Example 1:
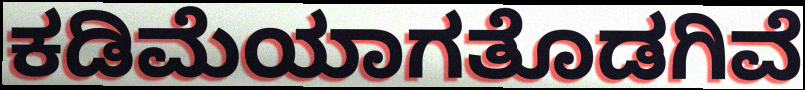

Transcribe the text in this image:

ಕಡಿಮೆಯಾಗತೊಡಗಿವೆ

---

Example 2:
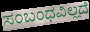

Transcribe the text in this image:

ಸಂಬಂಧವಿಲ್ಲದೆ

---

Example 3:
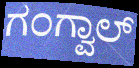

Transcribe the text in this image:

ಗಂಗ್ವಾಲ್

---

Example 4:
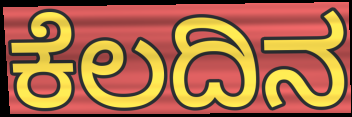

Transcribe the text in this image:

ಕೆಲದಿನ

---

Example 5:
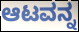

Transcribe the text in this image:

ಆಟವನ್ನ